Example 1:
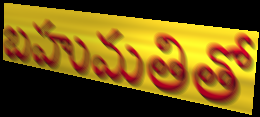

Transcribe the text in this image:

బహుమతితో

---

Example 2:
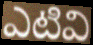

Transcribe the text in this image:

ఎటివి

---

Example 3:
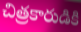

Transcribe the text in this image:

చిత్రకారుడికి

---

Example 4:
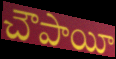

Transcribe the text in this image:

చౌపాయీ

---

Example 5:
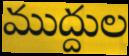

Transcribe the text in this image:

ముద్దుల